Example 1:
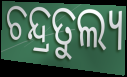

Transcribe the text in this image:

ଚନ୍ଦ୍ରତୁଲ୍ୟ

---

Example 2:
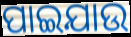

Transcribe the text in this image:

ପାଇଯାଉ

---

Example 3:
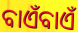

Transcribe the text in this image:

ବାଏଁବାଏଁ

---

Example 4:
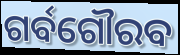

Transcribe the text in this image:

ଗର୍ବଗୌରବ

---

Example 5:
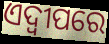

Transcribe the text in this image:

ଏଦ୍ୱୀପରେ